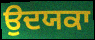
ਉਦਯਕਾ